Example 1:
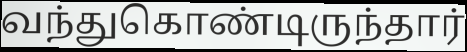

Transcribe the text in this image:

வந்துகொண்டிருந்தார்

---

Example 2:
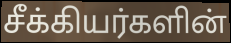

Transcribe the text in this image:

சீக்கியர்களின்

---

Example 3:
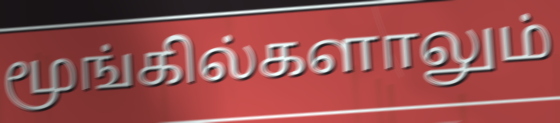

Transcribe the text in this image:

மூங்கில்களாலும்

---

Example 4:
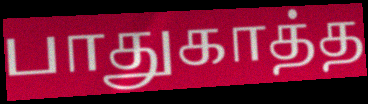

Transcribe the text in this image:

பாதுகாத்த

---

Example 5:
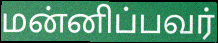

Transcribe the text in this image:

மன்னிப்பவர்